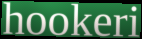
hookeri